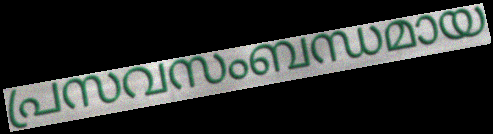
പ്രസവസംബന്ധമായ